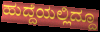
ಹುದ್ದೆಯಲ್ಲಿದ್ದೂ